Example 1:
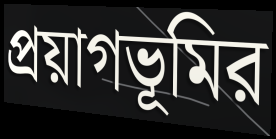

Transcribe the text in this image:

প্রয়াগভূমির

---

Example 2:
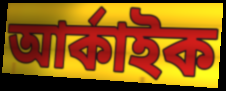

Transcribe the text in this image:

আর্কাইক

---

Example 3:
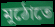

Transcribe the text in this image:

মুঠোতে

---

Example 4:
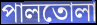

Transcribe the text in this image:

পালতোলা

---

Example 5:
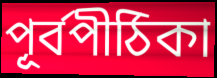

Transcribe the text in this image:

পূর্বপীঠিকা